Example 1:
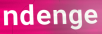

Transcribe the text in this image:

ndenge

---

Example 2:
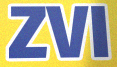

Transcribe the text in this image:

ZVI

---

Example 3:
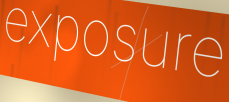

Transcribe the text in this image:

exposure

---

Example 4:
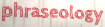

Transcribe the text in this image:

phraseology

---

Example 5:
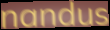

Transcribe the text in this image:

nandus